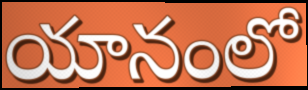
యానంలో